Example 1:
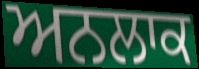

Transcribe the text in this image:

ਅਨਲਾਕ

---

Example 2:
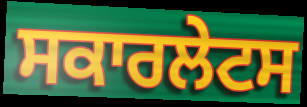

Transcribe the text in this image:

ਸਕਾਰਲੇਟਸ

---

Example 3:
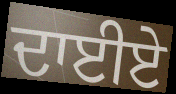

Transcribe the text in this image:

ਦਾਈਏ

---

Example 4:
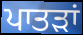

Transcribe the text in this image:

ਪਾਤੜਾਂ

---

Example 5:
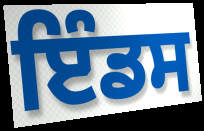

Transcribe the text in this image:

ਇੰਡਸ